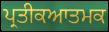
ਪ੍ਰਤੀਕਆਤਮਕ